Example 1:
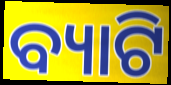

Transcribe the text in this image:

ବ୍ୟାଟି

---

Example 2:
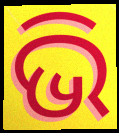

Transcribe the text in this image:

ଭି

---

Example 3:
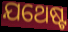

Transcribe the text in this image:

ଯଥେଷ୍ଟ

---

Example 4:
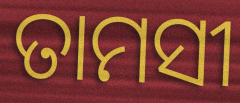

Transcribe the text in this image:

ତାମସୀ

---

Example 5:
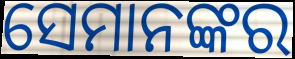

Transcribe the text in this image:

ସେମାନଙ୍କର